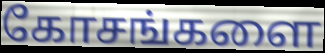
கோசங்களை